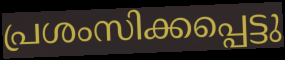
പ്രശംസിക്കപ്പെട്ടു